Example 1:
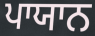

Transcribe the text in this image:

ਪਾਯਾਨ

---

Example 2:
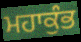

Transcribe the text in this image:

ਮਹਾਕੁੰਭ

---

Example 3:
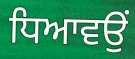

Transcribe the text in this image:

ਧਿਆਵਉਂ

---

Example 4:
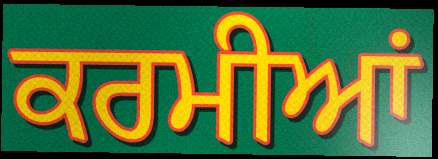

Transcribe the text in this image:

ਕਰਮੀਆਂ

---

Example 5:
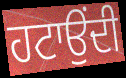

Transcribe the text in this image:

ਹਟਾਉਂਦੀ